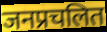
जनप्रचलित